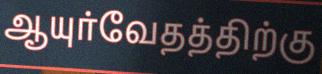
ஆயுர்வேதத்திற்கு